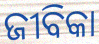
ଜୀବିକା